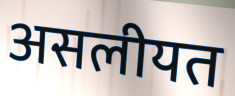
असलीयत